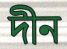
দীন